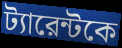
ট্যারেন্টকে